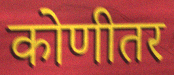
कोणीतर